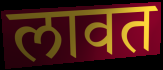
लावत